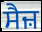
ਸੈਜ਼